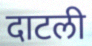
दाटली